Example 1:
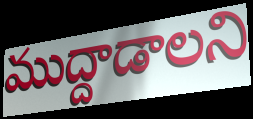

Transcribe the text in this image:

ముద్దాడాలని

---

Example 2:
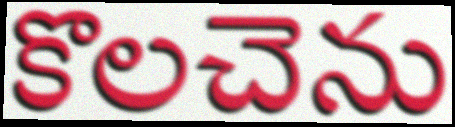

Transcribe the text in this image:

కొలచెను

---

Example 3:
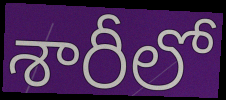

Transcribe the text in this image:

శారీలో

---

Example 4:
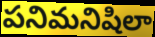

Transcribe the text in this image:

పనిమనిషిలా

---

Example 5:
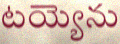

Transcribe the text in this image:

టయ్యెను